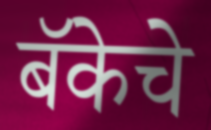
बॅकेचे